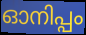
ഓനിപ്പം